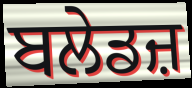
ਬਲੇਡਜ਼